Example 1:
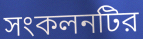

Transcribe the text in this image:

সংকলনটির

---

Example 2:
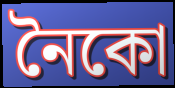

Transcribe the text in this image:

নৈকো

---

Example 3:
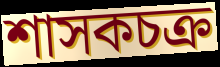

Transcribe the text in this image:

শাসকচক্র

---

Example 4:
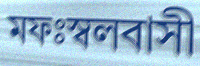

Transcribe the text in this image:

মফঃস্বলবাসী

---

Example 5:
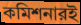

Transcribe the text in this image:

কমিশনারই